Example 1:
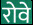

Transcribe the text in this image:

रोवे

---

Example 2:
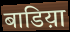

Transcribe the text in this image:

बाडिय़ा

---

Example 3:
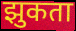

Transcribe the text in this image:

झुकता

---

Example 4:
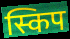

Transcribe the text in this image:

स्किप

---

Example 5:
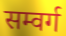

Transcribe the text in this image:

सम्वर्ग